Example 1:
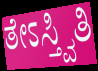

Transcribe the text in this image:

ತೇಽಸ್ತ್ವಿತಿ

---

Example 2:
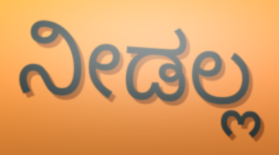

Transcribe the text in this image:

ನೀಡಲ್ಲ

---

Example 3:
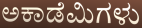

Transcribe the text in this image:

ಅಕಾಡೆಮಿಗಳು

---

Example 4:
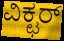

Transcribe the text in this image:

ವಿಕ್ಟರ್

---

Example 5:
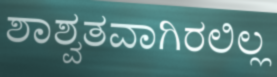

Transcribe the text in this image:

ಶಾಶ್ವತವಾಗಿರಲಿಲ್ಲ